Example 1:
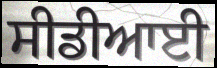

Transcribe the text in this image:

ਸੀਡੀਆਈ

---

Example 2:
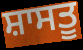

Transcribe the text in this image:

ਸ਼ਾਸਤੂ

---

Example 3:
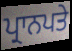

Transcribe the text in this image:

ਪ੍ਰਾਨਪਤੇ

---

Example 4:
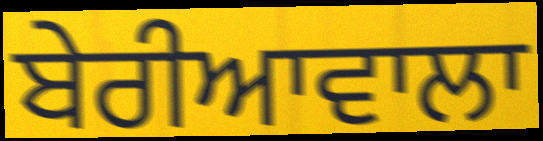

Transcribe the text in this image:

ਬੇਰੀਆਵਾਲਾ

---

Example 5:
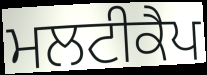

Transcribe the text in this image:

ਮਲਟੀਕੈਪ